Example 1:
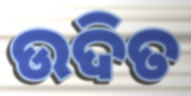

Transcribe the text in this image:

ଉଦିତ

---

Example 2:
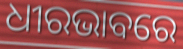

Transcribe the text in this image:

ଧୀରଭାବରେ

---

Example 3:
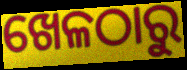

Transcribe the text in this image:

ଖେଳଠାରୁ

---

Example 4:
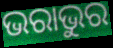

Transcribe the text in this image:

ଭରାଭୁର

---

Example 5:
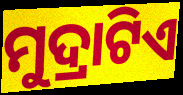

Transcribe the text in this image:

ମୁଦ୍ରାଟିଏ